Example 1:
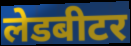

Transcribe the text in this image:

लेडबीटर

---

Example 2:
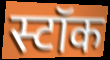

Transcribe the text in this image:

स्टॉक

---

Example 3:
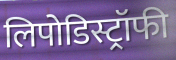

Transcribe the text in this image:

लिपोडिस्ट्रॉफी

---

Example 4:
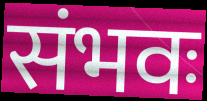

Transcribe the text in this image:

संभवः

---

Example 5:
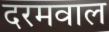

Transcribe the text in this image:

दरमवाल